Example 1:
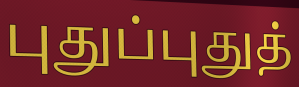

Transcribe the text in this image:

புதுப்புதுத்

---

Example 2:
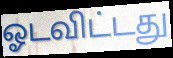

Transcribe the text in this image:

ஓடவிட்டது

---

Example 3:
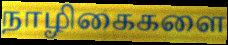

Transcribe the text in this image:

நாழிகைகளை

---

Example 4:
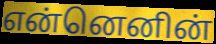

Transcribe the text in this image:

என்னெனின்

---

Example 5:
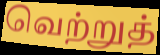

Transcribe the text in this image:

வெற்றுத்